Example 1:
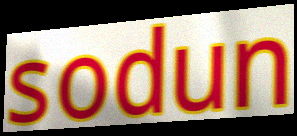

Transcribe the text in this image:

sodun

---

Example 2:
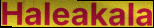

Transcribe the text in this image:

Haleakala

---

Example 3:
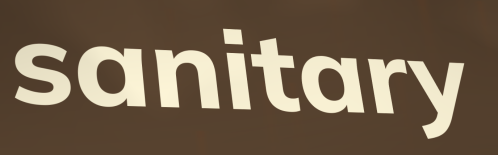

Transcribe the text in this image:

sanitary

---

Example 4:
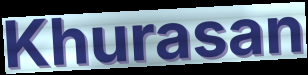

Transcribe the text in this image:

Khurasan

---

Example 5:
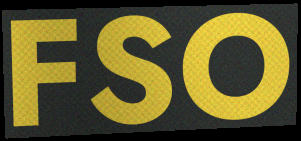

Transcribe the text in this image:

FSO